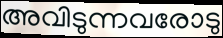
അവിടുന്നവരോടു